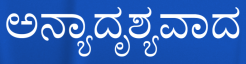
ಅನ್ಯಾದೃಶ್ಯವಾದ